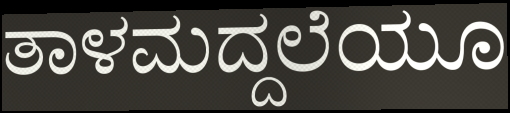
ತಾಳಮದ್ದಲೆಯೂ